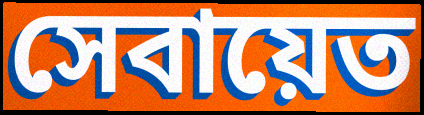
সেবায়েত